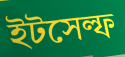
ইটসেল্ফ